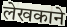
लेखकाने